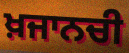
ਖ਼ਜਾਨਚੀ